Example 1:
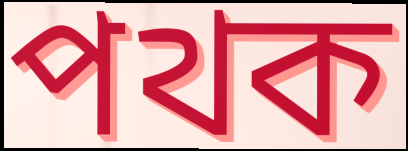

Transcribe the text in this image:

পথক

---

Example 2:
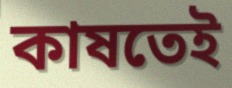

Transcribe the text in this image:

কাষতেই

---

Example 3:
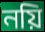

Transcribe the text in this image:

নয়ি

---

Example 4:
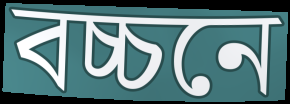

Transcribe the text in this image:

বচ্চনে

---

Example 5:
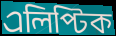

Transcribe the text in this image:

এলিপ্টিক